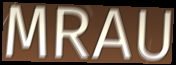
MRAU